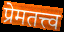
प्रेमतत्त्व